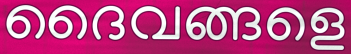
ദൈവങ്ങളെ